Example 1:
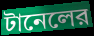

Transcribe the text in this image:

টানেলের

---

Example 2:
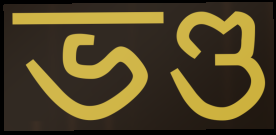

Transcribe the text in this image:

ভণ্ড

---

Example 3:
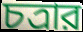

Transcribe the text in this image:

চত্রার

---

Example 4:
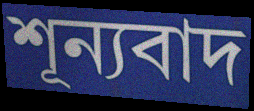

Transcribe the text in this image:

শূন্যবাদ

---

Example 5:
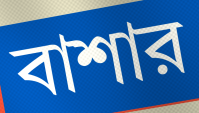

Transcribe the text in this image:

বাশার